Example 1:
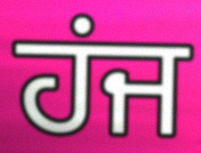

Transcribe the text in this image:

ਹਂਜ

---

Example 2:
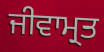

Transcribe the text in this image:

ਜੀਵਾਮ੍ਰਤ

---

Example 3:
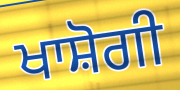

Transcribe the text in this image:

ਖਾਸ਼ੋਗੀ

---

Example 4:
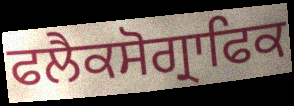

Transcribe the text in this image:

ਫਲੈਕਸੋਗ੍ਰਾਫਿਕ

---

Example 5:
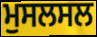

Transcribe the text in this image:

ਮੁਸਲਸਲ